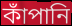
কাঁপানি